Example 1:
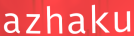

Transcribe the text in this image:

azhaku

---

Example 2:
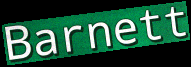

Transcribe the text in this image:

Barnett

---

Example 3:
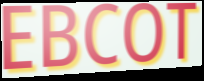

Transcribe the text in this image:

EBCOT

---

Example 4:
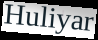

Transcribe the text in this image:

Huliyar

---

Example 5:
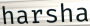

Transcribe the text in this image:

harsha